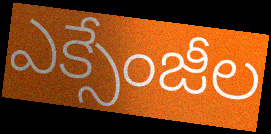
ఎక్సేంజీల